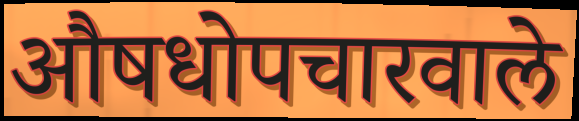
औषधोपचारवाले